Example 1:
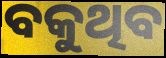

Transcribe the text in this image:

ବକୁଥିବ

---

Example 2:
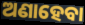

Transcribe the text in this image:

ଅଣାହେବା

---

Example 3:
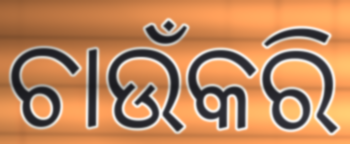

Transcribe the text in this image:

ଚାଉଁକରି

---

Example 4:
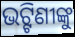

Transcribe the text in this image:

ଭଟ୍ଟିଣୀଙ୍କୁ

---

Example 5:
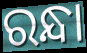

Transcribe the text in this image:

ରନ୍ଧା